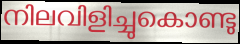
നിലവിളിച്ചുകൊണ്ടു